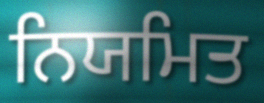
ਨਿਯਮਿਤ